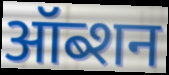
ऑब्शन